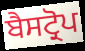
ਬੈਸਟ੍ਰੋਪ